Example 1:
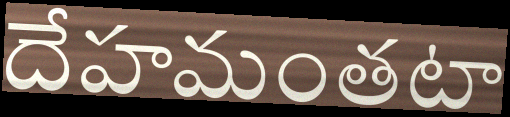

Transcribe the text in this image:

దేహమంతటా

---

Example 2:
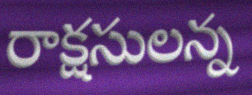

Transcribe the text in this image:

రాక్షసులన్న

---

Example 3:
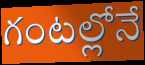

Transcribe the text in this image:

గంటల్లోనే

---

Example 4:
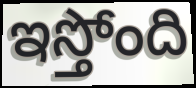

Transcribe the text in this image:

ఇస్తోంది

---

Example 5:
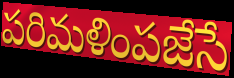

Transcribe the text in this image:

పరిమళింపజేసే